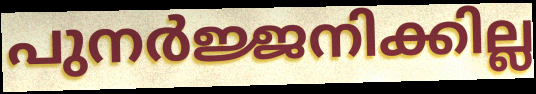
പുനർജ്ജനിക്കില്ല